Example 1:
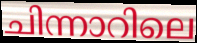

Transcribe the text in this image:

ചിന്നാറിലെ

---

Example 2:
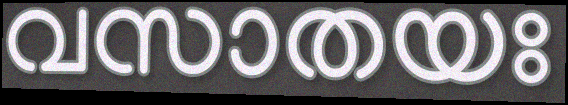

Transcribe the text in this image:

വസാതയഃ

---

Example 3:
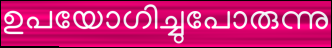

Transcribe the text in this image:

ഉപയോഗിച്ചുപോരുന്നു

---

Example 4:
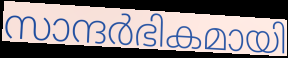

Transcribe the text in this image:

സാന്ദർഭികമായി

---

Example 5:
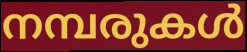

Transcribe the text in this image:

നമ്പരുകൾ